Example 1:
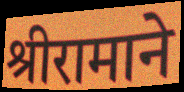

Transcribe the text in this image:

श्रीरामाने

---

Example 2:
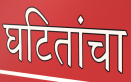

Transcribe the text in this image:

घटितांचा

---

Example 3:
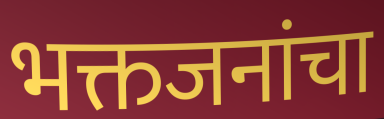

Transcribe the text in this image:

भक्तजनांचा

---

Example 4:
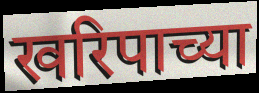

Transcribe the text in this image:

खरिपाच्या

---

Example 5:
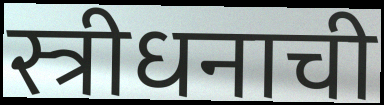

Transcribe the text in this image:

स्त्रीधनाची